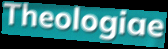
Theologiae